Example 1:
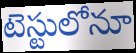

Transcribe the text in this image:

టెస్టులోనూ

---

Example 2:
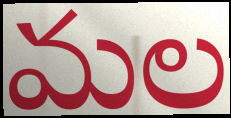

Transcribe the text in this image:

మల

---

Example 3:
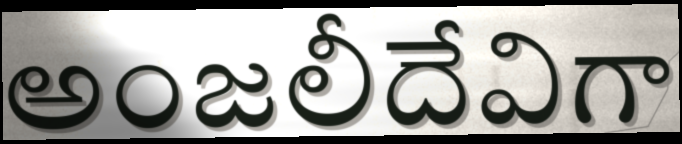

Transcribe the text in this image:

అంజలీదేవిగా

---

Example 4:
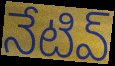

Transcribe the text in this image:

నేటివ్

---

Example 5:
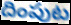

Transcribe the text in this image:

దింపుట